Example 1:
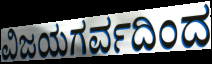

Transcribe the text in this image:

ವಿಜಯಗರ್ವದಿಂದ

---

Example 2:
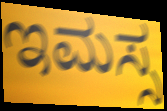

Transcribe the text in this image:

ಇಮಸ್ಸ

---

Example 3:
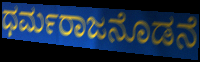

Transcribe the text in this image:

ಧರ್ಮರಾಜನೊಡನೆ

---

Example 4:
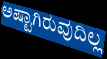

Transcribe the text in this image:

ಅಷ್ಟಾಗಿರುವುದಿಲ್ಲ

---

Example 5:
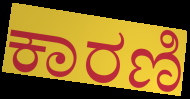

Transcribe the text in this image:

ಕಾರಣಿ